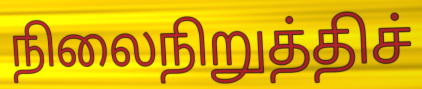
நிலைநிறுத்திச்